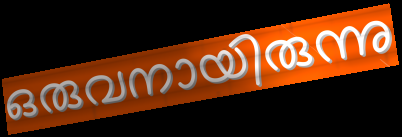
ഒരുവനായിരുന്നു